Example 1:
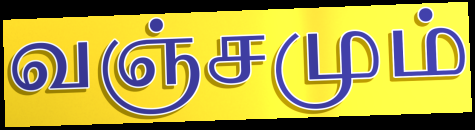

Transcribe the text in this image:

வஞ்சமும்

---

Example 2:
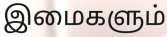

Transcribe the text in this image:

இமைகளும்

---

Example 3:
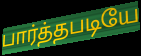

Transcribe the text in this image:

பார்த்தபடியே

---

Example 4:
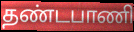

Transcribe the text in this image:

தண்டபாணி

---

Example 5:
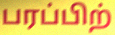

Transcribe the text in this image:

பரப்பிற்